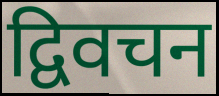
द्विवचन